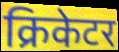
क्रिकेटर